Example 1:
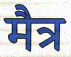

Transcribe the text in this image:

मैत्र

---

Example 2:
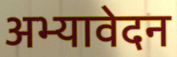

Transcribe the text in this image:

अभ्यावेदन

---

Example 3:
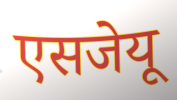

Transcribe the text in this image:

एसजेयू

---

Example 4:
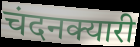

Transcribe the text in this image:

चंदनक्यारी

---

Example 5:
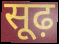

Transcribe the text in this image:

सूढ़